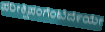
ಪರೀಕ್ಷಿಪಂಗೆಂಟೆರ್ದೆಯೇ